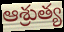
ఆశ్రుత్య